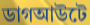
ডাগআউটে